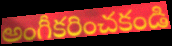
అంగీకరించకండి